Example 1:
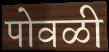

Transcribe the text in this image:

पोवळी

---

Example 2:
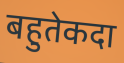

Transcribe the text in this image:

बहुतेकदा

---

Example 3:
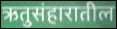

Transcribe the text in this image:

ऋतुसंहारातील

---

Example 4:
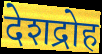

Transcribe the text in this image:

देशद्रोह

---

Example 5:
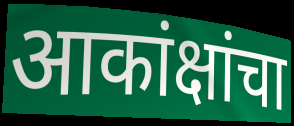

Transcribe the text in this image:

आकांक्षांचा